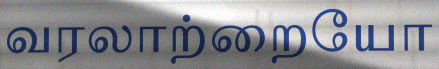
வரலாற்றையோ